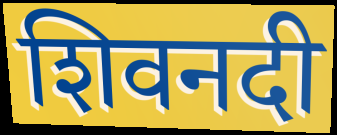
शिवनदी